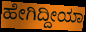
ಹೇಗಿದ್ದೀಯಾ